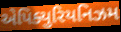
એપિક્યુરિયનિઝમ